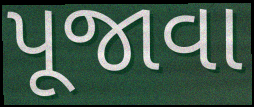
પૂજાવા